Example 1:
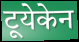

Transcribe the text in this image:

टूयेकेन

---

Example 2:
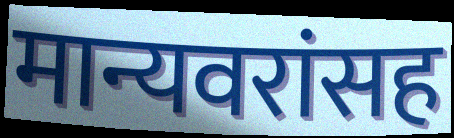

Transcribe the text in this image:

मान्यवरांसह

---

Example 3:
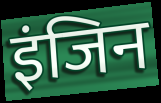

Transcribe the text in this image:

इंजिन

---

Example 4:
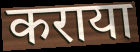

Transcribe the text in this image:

कराया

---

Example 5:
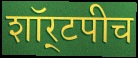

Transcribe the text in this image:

शॉर्टपीच